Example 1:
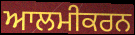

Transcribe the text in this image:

ਆਲਮੀਕਰਨ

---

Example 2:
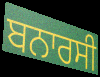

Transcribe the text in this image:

ਬਨਾਰਸੀ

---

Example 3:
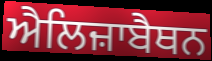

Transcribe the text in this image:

ਐਲਿਜ਼ਾਬੈਥਨ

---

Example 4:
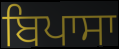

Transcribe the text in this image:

ਬਿਪਾਸਾ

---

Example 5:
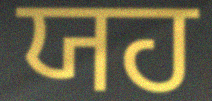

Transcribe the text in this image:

ਯਹ